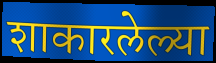
शाकारलेल्या